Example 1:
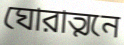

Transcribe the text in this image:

ঘোরাত্মনে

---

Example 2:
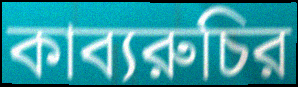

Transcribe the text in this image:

কাব্যরুচির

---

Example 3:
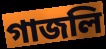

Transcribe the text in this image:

গাজলি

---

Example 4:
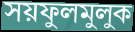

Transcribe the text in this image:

সয়ফুলমুলুক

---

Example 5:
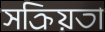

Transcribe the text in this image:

সক্রিয়তা